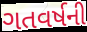
ગતવર્ષની